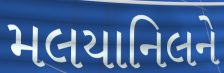
મલયાનિલને